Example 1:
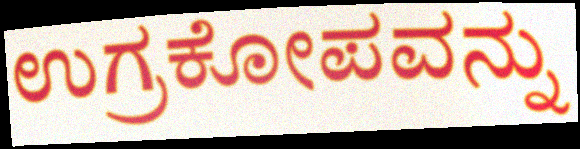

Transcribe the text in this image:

ಉಗ್ರಕೋಪವನ್ನು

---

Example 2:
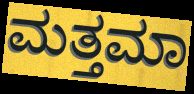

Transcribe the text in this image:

ಮತ್ತಮಾ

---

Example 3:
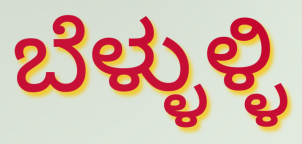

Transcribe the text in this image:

ಬೆಳ್ಳುಳ್ಳಿ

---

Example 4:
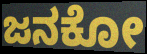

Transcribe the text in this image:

ಜನಕೋ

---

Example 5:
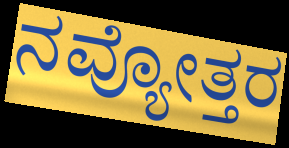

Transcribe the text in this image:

ನವ್ಯೋತ್ತರ